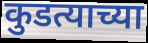
कुडत्याच्या